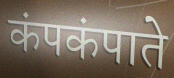
कंपकंपाते